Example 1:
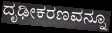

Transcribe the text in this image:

ದೃಢೀಕರಣವನ್ನೂ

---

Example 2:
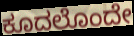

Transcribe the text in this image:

ಕೂದಲೊಂದೇ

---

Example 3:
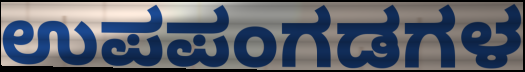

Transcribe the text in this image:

ಉಪಪಂಗಡಗಳ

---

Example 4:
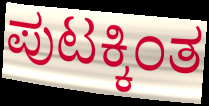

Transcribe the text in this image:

ಪುಟಕ್ಕಿಂತ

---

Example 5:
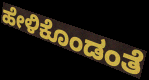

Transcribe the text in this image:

ಹೇಳಿಕೊಂಡಂತೆ